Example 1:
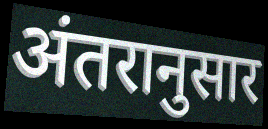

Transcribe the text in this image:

अंतरानुसार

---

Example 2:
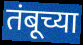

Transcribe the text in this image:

तंबूच्या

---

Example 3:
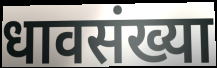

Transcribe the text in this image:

धावसंख्या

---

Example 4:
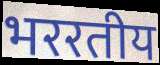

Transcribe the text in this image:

भररतीय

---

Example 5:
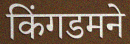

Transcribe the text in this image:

किंगडमने